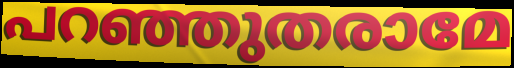
പറഞ്ഞുതരാമേ